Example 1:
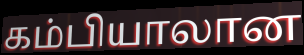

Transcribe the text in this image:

கம்பியாலான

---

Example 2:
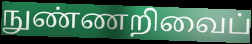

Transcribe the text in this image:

நுண்ணறிவைப்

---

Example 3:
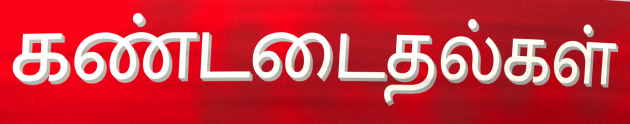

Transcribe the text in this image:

கண்டடைதல்கள்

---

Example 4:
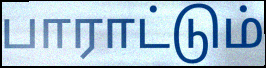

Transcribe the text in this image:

பாராட்டும்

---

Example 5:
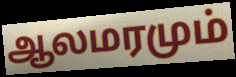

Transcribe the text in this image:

ஆலமரமும்